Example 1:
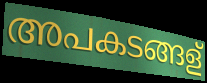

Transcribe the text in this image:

അപകടങ്ങള്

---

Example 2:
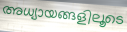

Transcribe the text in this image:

അധ്യായങ്ങളിലൂടെ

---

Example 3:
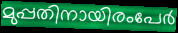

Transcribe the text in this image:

മുപ്പതിനായിരംപേർ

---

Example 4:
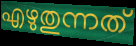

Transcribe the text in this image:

എഴുതുന്നത്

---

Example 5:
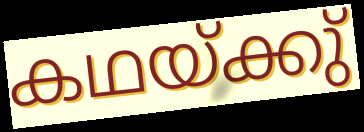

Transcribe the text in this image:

കഥയ്ക്കു്